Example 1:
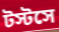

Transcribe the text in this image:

টস্টসে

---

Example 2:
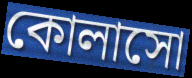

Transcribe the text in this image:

কোলাসো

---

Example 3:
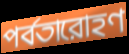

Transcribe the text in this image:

পর্বতারোহণ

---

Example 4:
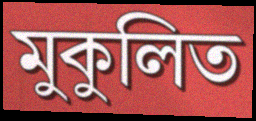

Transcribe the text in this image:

মুকুলিত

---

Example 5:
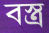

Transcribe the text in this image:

বস্ত্র